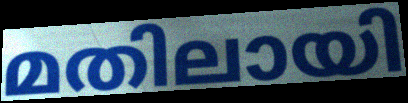
മതിലായി